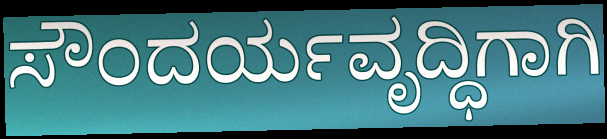
ಸೌಂದರ್ಯವೃದ್ಧಿಗಾಗಿ